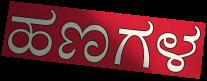
ಹಣಗಳ